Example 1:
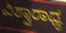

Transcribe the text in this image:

ವಿಶ್ವಾರಾಧ್ಯ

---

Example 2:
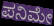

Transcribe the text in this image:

ಪನಿಮೇ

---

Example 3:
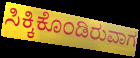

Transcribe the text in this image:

ಸಿಕ್ಕಿಕೊಂಡಿರುವಾಗ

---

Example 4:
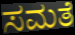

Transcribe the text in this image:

ಸಮತೆ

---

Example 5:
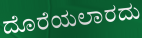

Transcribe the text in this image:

ದೊರೆಯಲಾರದು